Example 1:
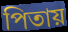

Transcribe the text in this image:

পিতায়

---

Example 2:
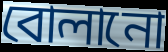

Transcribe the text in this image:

বোলানো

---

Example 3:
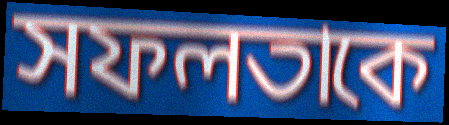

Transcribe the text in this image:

সফলতাকে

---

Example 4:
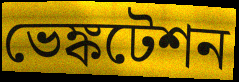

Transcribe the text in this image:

ভেঙ্কটেশন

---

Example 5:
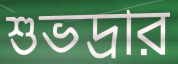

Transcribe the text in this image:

শুভদ্রার